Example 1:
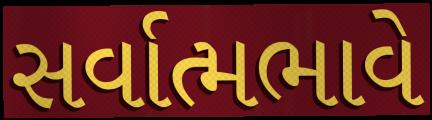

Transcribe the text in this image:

સર્વાત્મભાવે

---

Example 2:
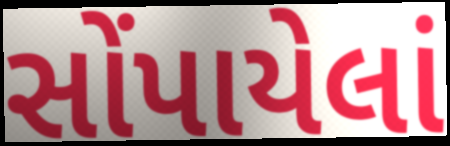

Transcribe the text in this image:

સોંપાયેલાં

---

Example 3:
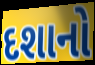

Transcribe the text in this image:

દશાનો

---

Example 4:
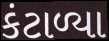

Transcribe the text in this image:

કંટાળ્યા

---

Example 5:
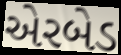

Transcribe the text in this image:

એરબેડ